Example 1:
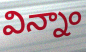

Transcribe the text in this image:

విన్నాం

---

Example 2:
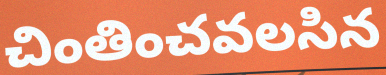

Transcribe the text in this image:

చింతించవలసిన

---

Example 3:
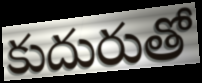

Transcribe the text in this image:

కుదురుతో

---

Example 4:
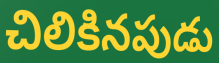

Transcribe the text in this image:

చిలికినపుడు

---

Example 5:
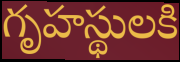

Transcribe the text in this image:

గృహస్థులకి